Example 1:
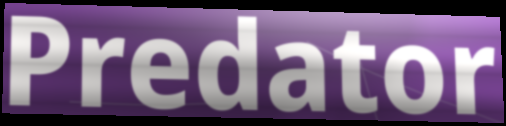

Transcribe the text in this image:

Predator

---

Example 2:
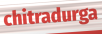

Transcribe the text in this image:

chitradurga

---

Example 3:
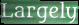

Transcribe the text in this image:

Largely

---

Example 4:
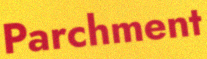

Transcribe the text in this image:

Parchment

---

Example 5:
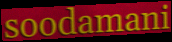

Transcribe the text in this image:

soodamani